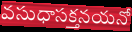
వసుధాసక్తనయనో